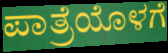
ಪಾತ್ರೆಯೊಳಗೆ